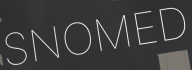
SNOMED